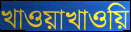
খাওয়াখাওয়ি